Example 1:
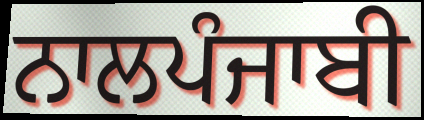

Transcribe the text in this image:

ਨਾਲਪੰਜਾਬੀ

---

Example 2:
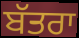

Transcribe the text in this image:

ਬੱਤਰਾ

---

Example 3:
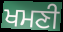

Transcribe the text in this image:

ਖਮਣੀ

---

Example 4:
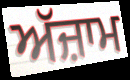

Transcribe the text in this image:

ਅੱਜ਼ਾਮ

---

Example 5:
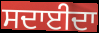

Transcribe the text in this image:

ਸਦਾਈਦਾ